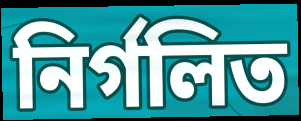
নির্গলিত